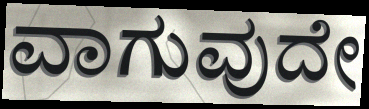
ವಾಗುವುದೇ